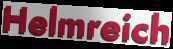
Helmreich